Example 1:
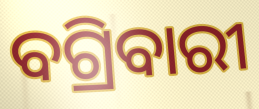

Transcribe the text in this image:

ବଗ୍ରିବାରୀ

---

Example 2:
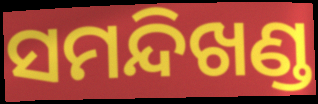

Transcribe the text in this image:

ସମନ୍ଦିଖଣ୍ଡ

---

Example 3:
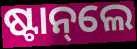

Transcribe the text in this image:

ଷ୍ଟାନ୍‌ଲେ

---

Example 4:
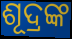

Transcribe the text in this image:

ଶୂଦ୍ରଙ୍କ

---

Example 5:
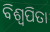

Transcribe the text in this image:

ବିଶ୍ୱପିତା